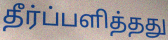
தீர்ப்பளித்தது